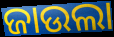
ଜାଉଲା